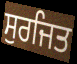
ਸੁਰਜਿਤ